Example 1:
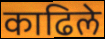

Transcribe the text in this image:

काढिले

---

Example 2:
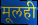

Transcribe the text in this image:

मूलही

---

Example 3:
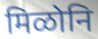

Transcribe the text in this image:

मिळोनि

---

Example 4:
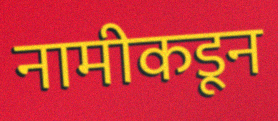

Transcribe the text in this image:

नामीकडून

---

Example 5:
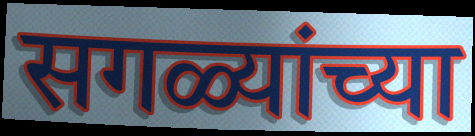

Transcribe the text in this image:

सगळ्यांच्या